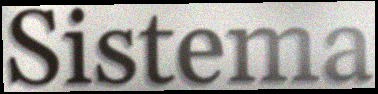
Sistema